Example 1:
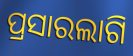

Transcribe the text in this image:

ପ୍ରସାରଲାଗି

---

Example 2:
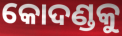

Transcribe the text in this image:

କୋଦଣ୍ଡକୁ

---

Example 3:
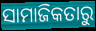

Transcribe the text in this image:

ସାମାଜିକତାରୁ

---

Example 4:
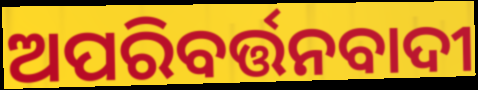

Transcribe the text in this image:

ଅପରିବର୍ତ୍ତନବାଦୀ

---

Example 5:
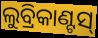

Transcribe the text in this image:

ଲୁବ୍ରିକାଣ୍ଟସ୍